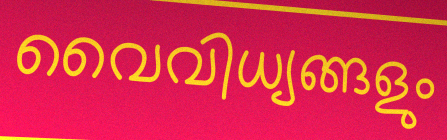
വൈവിധ്യങ്ങളും